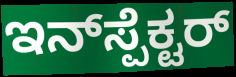
ಇನ್‌ಸ್ಪೆಕ್ಟರ್